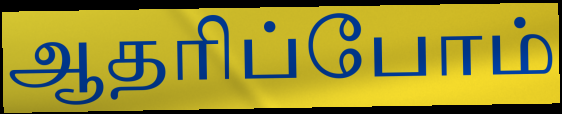
ஆதரிப்போம்